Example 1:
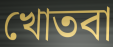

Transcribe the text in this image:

খোতবা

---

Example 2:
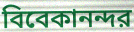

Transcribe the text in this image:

বিবেকানন্দর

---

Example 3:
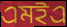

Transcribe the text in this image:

এমইএ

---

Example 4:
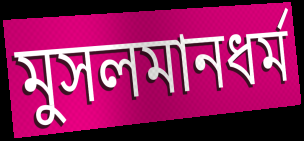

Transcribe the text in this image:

মুসলমানধর্ম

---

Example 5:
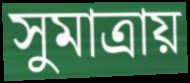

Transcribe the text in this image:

সুমাত্রায়